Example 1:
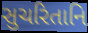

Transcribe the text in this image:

સુચરિતાનિ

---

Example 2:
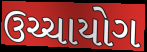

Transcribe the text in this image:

ઉચ્ચાયોગ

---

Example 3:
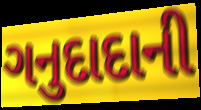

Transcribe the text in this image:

ગનુદાદાની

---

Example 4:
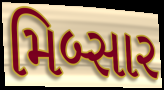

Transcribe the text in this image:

મિબ્સાર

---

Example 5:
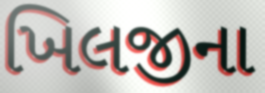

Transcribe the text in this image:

ખિલજીના